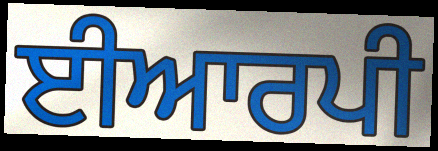
ਈਆਰਪੀ